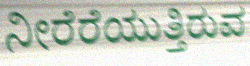
ನೀರೆರೆಯುತ್ತಿರುವ